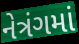
નેત્રંગમાં